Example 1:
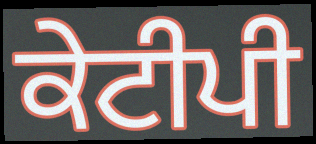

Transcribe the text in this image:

ਕੇਟੀਪੀ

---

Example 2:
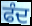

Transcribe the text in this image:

ਫੰਦ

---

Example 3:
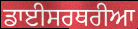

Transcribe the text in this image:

ਡਾਈਸਰਥਰੀਆ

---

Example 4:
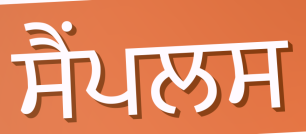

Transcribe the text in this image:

ਸੈਂਪਲਸ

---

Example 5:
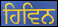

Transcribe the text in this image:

ਹਿਵਿਨ